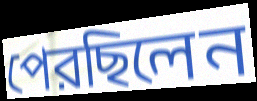
পেরছিলেন